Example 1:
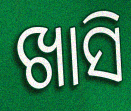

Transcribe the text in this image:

ଖାସି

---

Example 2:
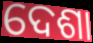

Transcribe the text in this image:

ଦେଶା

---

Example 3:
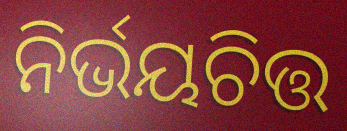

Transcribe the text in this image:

ନିର୍ଭୟଚିତ୍ତ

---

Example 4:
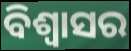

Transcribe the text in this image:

ବିଶ୍ବାସର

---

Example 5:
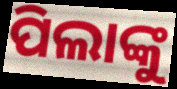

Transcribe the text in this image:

ପିଲାଙ୍କୁ